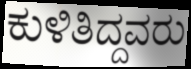
ಕುಳಿತಿದ್ದವರು